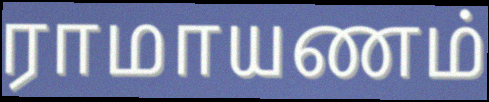
ராமாயணம்